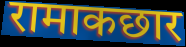
रामाकछार